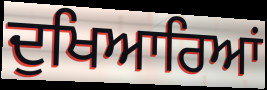
ਦੁਖਿਆਰਿਆਂ